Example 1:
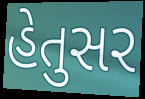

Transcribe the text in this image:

હેતુસર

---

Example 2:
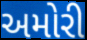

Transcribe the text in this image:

અમોરી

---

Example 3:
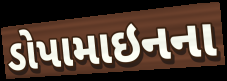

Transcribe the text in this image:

ડોપામાઇનના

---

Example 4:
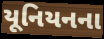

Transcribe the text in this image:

યૂનિયનના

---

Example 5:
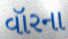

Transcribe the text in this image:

વૉરના